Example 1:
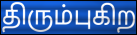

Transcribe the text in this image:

திரும்புகிற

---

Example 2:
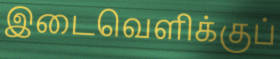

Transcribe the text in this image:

இடைவெளிக்குப்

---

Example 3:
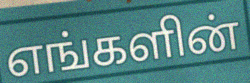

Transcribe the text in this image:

எங்களின்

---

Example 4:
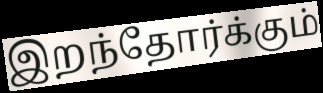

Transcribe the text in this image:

இறந்தோர்க்கும்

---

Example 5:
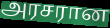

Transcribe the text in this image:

அரசரான